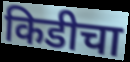
किडीचा